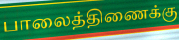
பாலைத்திணைக்கு